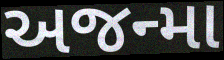
અજન્મા